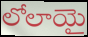
లోలాయై